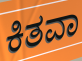
ಕಿತವಾ